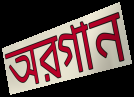
অরগান